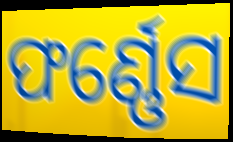
ଫର୍ଣ୍ଣେସ